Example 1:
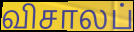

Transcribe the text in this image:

விசாலப்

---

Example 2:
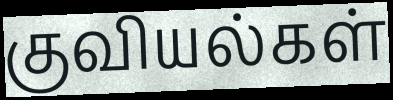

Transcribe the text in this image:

குவியல்கள்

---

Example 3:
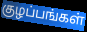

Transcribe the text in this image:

குழப்பங்கள்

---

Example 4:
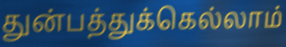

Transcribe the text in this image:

துன்பத்துக்கெல்லாம்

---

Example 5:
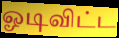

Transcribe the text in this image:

ஓடிவிட்ட